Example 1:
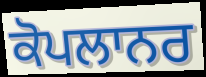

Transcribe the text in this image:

ਕੋਪਲਾਨਰ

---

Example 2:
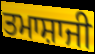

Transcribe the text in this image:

ਤਮਾਸ਼ਾਜੀ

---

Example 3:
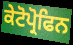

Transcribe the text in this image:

ਕੇਟੋਪ੍ਰੋਫਿਨ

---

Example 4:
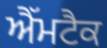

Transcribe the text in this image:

ਐੱਮਟੈਕ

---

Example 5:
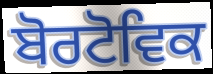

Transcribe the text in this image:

ਬੋਰਟੋਵਿਕ